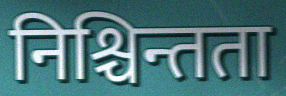
निश्चिन्तता